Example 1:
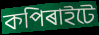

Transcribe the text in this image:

কপিৰাইটে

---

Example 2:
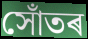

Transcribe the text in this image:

সোঁতৰ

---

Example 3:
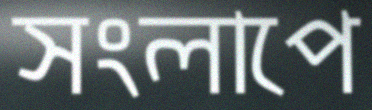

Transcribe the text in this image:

সংলাপে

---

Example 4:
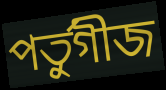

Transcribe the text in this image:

পৰ্তুগীজ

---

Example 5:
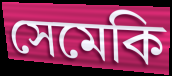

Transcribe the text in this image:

সেমেকি